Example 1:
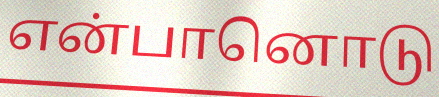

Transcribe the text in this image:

என்பானொடு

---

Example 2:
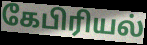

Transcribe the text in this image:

கேபிரியல்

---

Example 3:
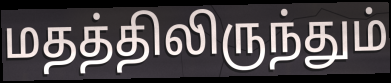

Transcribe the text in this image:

மதத்திலிருந்தும்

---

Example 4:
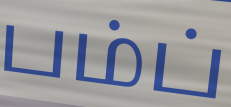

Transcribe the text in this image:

பம்ப்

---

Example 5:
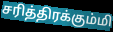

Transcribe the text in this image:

சரித்திரக்கும்மி